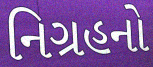
નિગ્રહનો